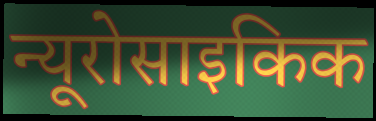
न्यूरोसाइकिक